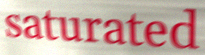
saturated